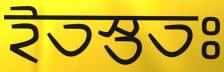
ইতস্ততঃ